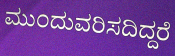
ಮುಂದುವರಿಸದಿದ್ದರೆ